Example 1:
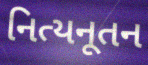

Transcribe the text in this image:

નિત્યનૂતન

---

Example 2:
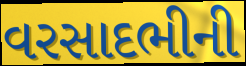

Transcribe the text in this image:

વરસાદભીની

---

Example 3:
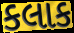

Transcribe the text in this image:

કલાક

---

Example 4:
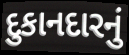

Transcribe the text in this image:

દુકાનદારનું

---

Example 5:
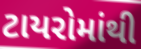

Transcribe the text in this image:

ટાયરોમાંથી